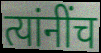
त्यांनींच